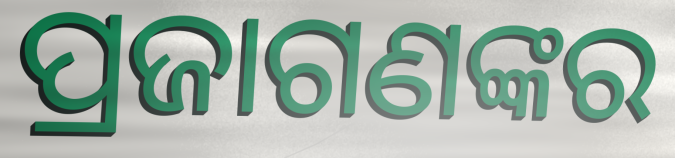
ପ୍ରଜାଗଣଙ୍କର